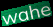
wahe